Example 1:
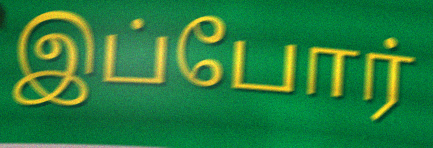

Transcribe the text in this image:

இப்போர்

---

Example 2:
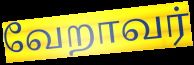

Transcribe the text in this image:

வேறாவர்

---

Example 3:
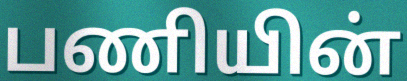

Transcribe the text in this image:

பணியின்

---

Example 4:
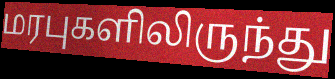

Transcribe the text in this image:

மரபுகளிலிருந்து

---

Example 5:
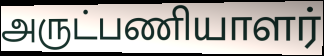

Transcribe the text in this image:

அருட்பணியாளர்